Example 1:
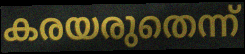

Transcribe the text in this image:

കരയരുതെന്ന്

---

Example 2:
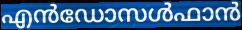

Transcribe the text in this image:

എൻഡോസൾഫാൻ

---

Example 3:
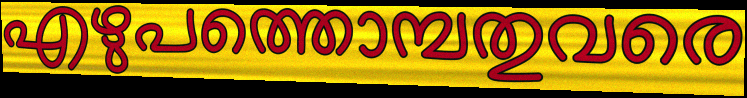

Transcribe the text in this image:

എഴുപത്തൊമ്പതുവരെ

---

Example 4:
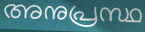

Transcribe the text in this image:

അനുപ്രസ്ഥ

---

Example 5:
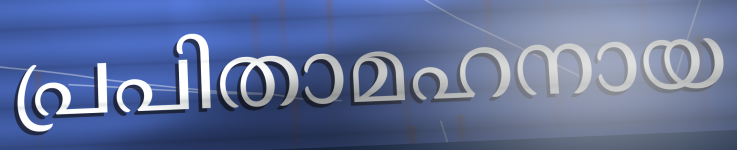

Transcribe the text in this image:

പ്രപിതാമഹനായ